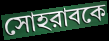
সোহরাবকে